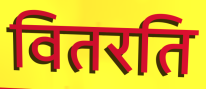
वितरति